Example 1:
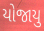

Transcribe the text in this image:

યોજાયુ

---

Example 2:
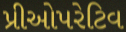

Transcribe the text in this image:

પ્રીઓપરેટિવ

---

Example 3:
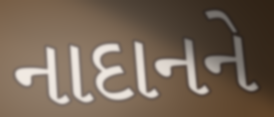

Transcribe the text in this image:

નાદાનને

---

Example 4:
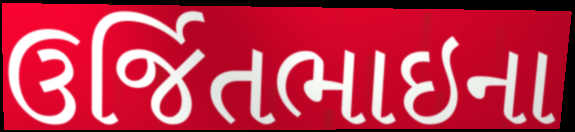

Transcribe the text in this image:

ઉર્જિતભાઇના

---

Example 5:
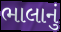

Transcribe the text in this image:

ભાલાનું